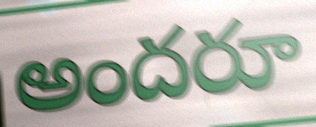
అందరూ